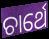
ଚାର୍ଥେ